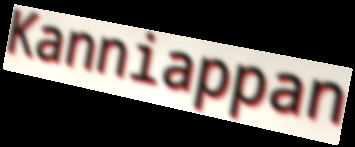
Kanniappan